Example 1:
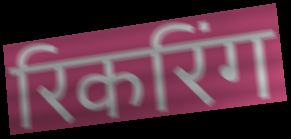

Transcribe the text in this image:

रिकरिंग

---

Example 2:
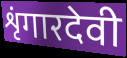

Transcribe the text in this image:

शृंगारदेवी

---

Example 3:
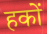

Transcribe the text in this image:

हकों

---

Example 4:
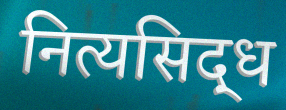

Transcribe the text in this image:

नित्यसिद्ध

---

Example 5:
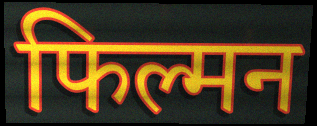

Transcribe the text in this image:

फिल्मन